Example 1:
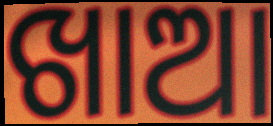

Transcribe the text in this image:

ଖାଆ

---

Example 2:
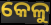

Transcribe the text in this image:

କେଳୁ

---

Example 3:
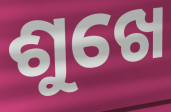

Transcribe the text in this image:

ଶୁଖେ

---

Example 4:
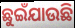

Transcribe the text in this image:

ଛୁଇଁଯାଉଛି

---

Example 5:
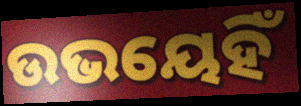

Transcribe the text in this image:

ଉଭୟେହିଁ